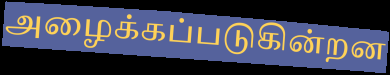
அழைக்கப்படுகின்றன